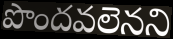
పొందవలెనని